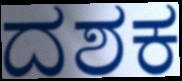
ದಶಕ